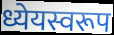
ध्येयस्वरूप